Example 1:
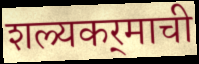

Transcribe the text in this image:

शल्यकर्माची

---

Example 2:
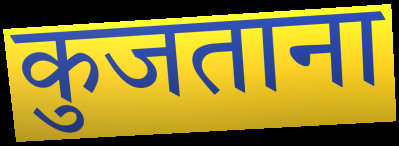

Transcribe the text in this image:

कुजताना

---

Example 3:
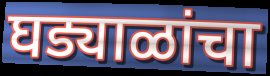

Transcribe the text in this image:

घड्याळांचा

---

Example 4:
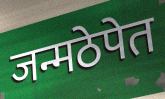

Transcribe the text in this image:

जन्मठेपेत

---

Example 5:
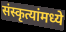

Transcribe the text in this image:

संस्कृत्यांमध्ये